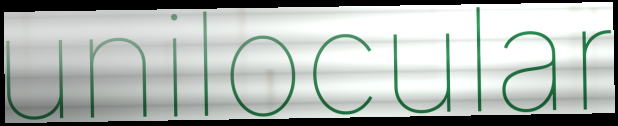
unilocular